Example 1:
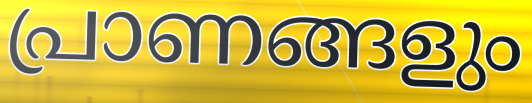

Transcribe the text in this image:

പ്രാണങ്ങളും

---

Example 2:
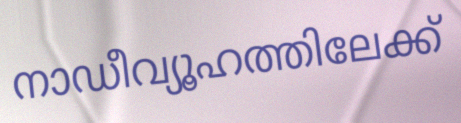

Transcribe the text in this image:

നാഡീവ്യൂഹത്തിലേക്ക്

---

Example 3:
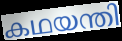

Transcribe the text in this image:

കഥയന്തി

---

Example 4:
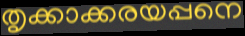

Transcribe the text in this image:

തൃക്കാക്കരയപ്പനെ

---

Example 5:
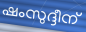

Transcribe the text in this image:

ഷംസുദ്ദീന്